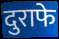
दुराफे